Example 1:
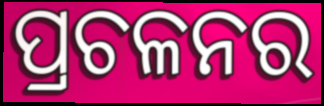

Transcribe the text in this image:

ପ୍ରଚଳନର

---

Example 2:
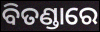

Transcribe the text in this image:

ବିତଣ୍ଡାରେ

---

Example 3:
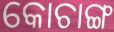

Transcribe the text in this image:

କୋଚାଙ୍ଗ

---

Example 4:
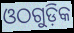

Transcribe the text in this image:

ଓଠଗୁଡ଼ିକ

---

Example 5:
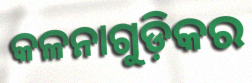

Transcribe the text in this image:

କଳନାଗୁଡ଼ିକର